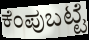
ಕೆಂಪುಬಟ್ಟೆ